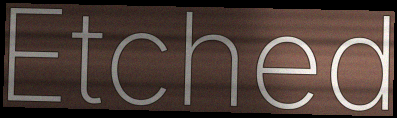
Etched